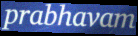
prabhavam